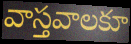
వాస్తవాలకూ